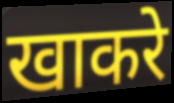
खाकरे